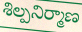
శిల్పనిర్మాణ